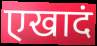
एखादं